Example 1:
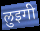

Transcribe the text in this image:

लुइगी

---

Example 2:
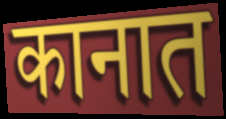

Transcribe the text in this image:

कानात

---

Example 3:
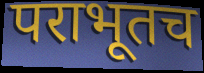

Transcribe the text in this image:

पराभूतच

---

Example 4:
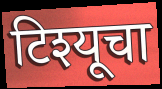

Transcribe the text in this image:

टिश्यूचा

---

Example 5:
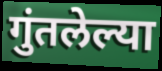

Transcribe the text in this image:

गुंतलेल्या